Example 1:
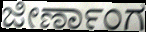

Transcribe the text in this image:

ಜೀರ್ಣಾಂಗ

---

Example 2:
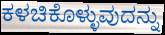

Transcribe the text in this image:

ಕಳಚಿಕೊಳ್ಳುವುದನ್ನು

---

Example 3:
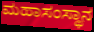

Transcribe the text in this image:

ಮಹಾಸಂಸ್ಥಾನ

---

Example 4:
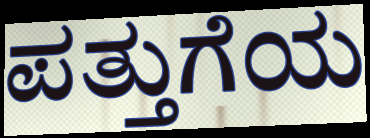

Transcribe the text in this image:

ಪತ್ತುಗೆಯ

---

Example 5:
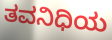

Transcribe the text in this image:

ತವನಿಧಿಯ